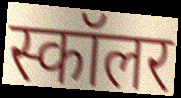
स्कॉलर